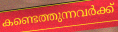
കണ്ടെത്തുന്നവർക്ക്